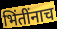
भिंतींनाच